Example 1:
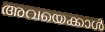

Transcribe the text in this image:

അവയെക്കാൾ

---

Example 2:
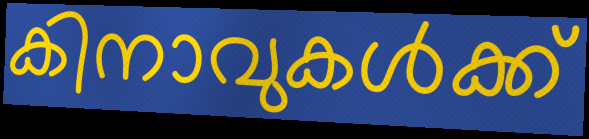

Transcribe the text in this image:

കിനാവുകൾക്ക്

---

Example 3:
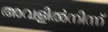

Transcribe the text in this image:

അവളിൽനിന്ന്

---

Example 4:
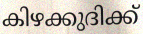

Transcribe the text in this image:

കിഴക്കുദിക്ക്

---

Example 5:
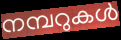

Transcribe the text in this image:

നമ്പറുകൾ